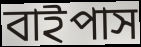
বাইপাস